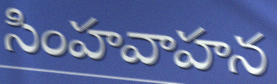
సింహవాహన